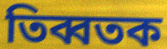
তিব্বতক